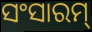
ସଂସାରମ୍